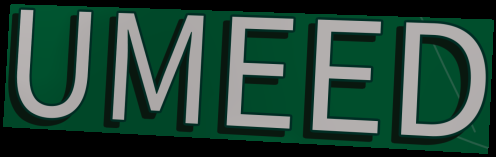
UMEED